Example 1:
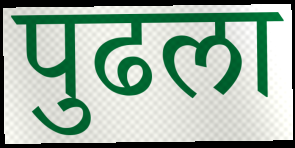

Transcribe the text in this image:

पुढला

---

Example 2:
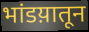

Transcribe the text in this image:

भांडय़ातून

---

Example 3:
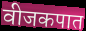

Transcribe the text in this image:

वीजकपात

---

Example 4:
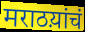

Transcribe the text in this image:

मराठय़ांचं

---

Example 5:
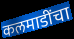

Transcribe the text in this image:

कलमाडींचा